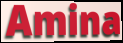
Amina